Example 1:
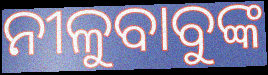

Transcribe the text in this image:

ନୀଳୁବାବୁଙ୍କ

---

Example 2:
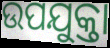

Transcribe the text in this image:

ଉପଯୁକ୍ତା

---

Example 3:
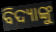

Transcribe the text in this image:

ବିଦ୍ୟାଙ୍କୁ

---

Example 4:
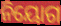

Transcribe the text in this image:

ନିୟୋଗ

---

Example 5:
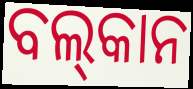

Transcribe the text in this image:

ବଲ୍‌କାନ